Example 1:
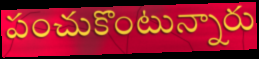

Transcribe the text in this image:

పంచుకొంటున్నారు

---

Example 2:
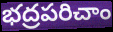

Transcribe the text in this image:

భద్రపరిచాం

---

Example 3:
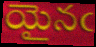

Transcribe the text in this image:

యైనఁ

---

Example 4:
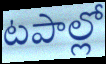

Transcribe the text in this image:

టపాల్లో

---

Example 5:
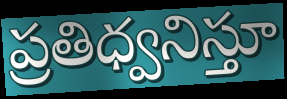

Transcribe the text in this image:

ప్రతిధ్వనిస్తూ